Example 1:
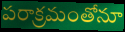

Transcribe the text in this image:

పరాక్రమంతోనూ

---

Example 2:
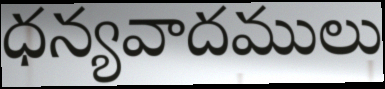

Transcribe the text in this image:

ధన్యవాదములు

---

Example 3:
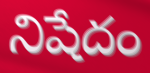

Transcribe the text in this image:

నిషేదం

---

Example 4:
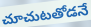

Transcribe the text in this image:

చూచుటతోడనే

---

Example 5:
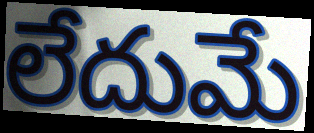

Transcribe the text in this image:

లేదుమే